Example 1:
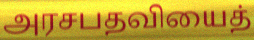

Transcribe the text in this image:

அரசபதவியைத்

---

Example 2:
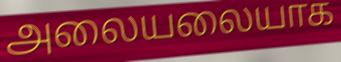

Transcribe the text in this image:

அலையலையாக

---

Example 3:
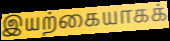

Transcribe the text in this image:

இயற்கையாகக்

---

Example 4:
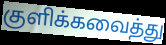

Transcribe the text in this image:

குளிக்கவைத்து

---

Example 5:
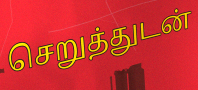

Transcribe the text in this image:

செறுத்துடன்